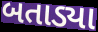
બતાડ્યા